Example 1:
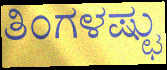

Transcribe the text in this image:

ತಿಂಗಳಷ್ಟು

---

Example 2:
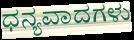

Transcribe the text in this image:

ಧನ್ಯವಾದಗಳು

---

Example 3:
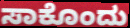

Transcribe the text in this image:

ಸಾಕೊಂದು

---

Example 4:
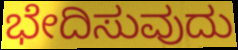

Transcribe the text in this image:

ಭೇದಿಸುವುದು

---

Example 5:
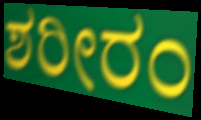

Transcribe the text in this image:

ಶರೀರಂ